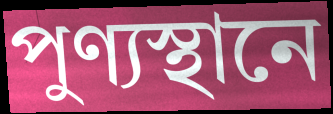
পুণ্যস্থানে